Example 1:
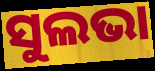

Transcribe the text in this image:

ସୁଲଭା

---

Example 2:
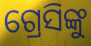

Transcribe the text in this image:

ଗ୍ରେସିଙ୍କୁ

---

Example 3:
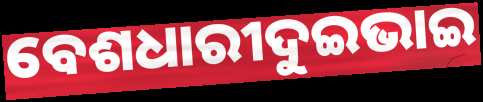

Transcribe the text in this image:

ବେଶଧାରୀଦୁଇଭାଇ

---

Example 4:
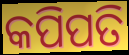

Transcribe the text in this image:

କପିପତି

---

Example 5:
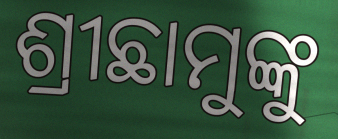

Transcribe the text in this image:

ଶ୍ରୀଛାମୁଙ୍କୁ